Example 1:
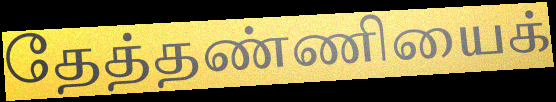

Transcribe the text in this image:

தேத்தண்ணியைக்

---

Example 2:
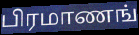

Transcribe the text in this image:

பிரமாணங்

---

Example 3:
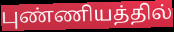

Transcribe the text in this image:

புண்ணியத்தில்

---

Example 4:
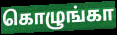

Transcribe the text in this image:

கொழுங்கா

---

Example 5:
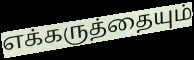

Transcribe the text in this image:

எக்கருத்தையும்